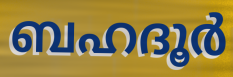
ബഹദൂർ